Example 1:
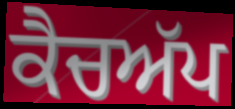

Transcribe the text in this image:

ਕੈਚਅੱਪ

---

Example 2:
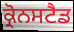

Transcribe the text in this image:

ਕ੍ਰੋਨਸਟੈਡ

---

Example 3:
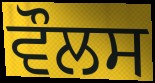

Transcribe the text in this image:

ਵੌਲਸ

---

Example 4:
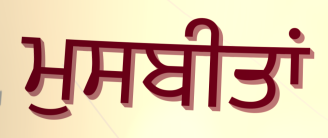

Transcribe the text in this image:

ਮੁਸਬੀਤਾਂ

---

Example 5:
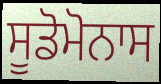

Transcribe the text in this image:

ਸੂਡੋਮੋਨਾਸ